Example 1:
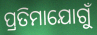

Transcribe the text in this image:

ପ୍ରତିମାଯୋଗୁଁ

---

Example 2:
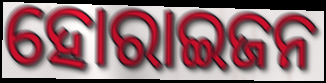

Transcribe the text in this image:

ହୋରାଇଜନ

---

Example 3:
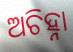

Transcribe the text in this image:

ଅଚିହ୍ନା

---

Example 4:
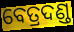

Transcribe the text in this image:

ବେତ୍ରଦଣ୍ଡ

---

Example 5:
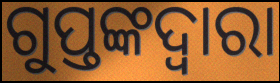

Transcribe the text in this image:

ଗୁପ୍ତଙ୍କଦ୍ୱାରା